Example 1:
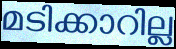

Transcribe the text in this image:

മടിക്കാറില്ല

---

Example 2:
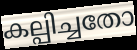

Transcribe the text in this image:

കല്പിച്ചതോ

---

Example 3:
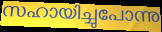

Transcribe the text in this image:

സഹായിച്ചുപോന്നു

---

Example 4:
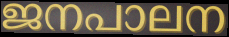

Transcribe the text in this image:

ജനപാലന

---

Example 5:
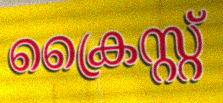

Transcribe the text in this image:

ക്രൈസ്റ്റ്